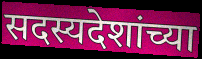
सदस्यदेशांच्या